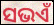
ସଭଏଁ